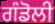
ਗੰਡੋਲੀ